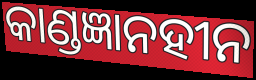
କାଣ୍ଡଜ୍ଞାନହୀନ